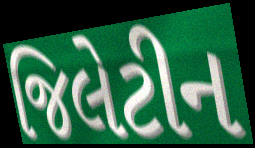
જિલેટીન